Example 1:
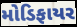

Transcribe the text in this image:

મોડિફાયર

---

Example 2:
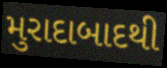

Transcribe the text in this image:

મુરાદાબાદથી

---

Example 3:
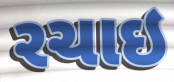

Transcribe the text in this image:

રચાઇ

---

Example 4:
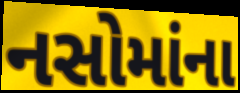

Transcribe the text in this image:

નસોમાંના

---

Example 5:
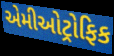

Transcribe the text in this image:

એમીઓટ્રોફિક